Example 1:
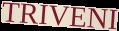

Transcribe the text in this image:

TRIVENI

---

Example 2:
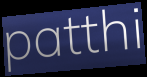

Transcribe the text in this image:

patthi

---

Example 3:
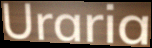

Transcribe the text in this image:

Uraria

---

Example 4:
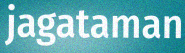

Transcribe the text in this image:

jagataman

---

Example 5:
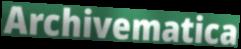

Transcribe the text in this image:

Archivematica